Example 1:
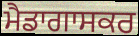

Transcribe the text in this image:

ਮੈਡਾਗਾਸਕਰ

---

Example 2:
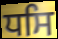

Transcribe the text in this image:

ਧਸਿ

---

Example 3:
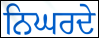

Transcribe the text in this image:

ਨਿਘਰਦੇ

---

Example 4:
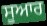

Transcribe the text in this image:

ਸੂਆਰ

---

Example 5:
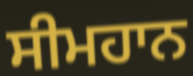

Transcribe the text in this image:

ਸੀਮਹਾਨ